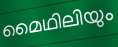
മൈഥിലിയും